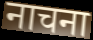
नाचना